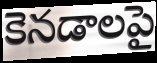
కెనడాలపై